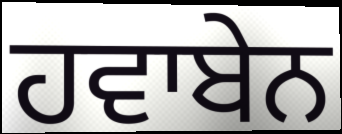
ਹਵਾਬੇਨ